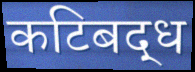
कटिबद्ध